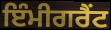
ਇੰਮੀਗਰੈਂਟ